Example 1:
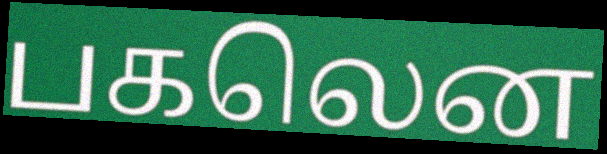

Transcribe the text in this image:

பகலென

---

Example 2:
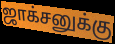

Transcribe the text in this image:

ஜாக்சனுக்கு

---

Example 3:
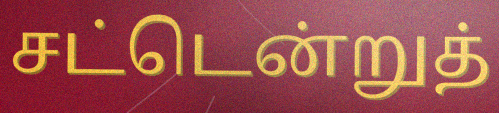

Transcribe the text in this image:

சட்டென்றுத்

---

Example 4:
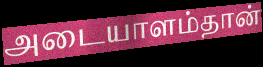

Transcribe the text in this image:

அடையாளம்தான்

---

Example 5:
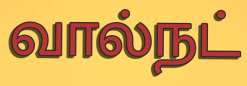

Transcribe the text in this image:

வால்நட்